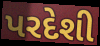
પરદેશી